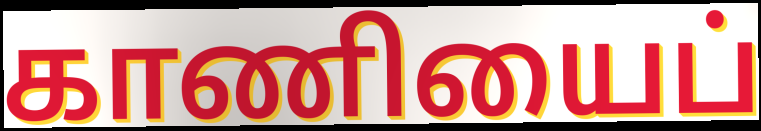
காணியைப்